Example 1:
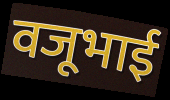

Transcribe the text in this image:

वजूभाई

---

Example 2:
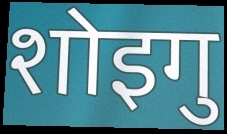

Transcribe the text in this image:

शोइगु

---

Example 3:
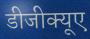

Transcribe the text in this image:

डीजीक्यूए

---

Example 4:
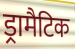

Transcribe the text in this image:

ड्रामैटिक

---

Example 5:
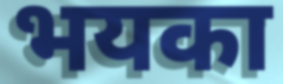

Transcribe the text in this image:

भयका